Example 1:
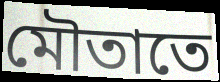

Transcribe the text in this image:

মৌতাতে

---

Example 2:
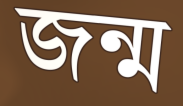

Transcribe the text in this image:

জন্ম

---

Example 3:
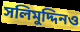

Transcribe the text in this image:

সলিমুদ্দিনও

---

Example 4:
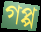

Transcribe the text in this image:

গপ্প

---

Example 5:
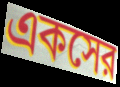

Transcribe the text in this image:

একসের